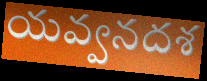
యవ్వనదశ